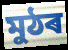
মুঠৰ